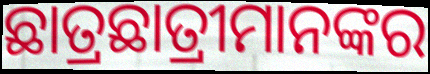
ଛାତ୍ରଛାତ୍ରୀମାନଙ୍କର